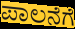
ಪಾಲನೆಗೆ